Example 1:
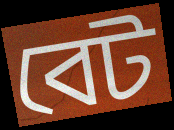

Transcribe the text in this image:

বেট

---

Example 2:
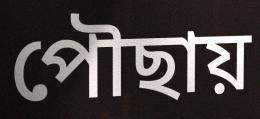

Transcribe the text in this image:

পৌছায়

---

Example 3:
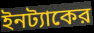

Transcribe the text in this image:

ইনট্যাকের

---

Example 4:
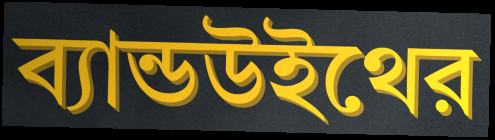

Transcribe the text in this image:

ব্যান্ডউইথের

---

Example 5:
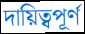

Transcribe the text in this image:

দায়িত্বপূর্ণ